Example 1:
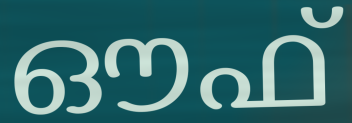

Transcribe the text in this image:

ഔഫ്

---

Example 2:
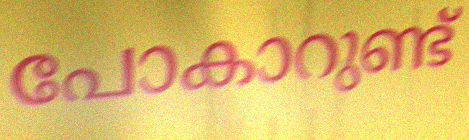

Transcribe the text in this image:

പോകാറുണ്ട്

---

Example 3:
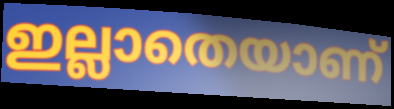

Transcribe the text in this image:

ഇല്ലാതെയാണ്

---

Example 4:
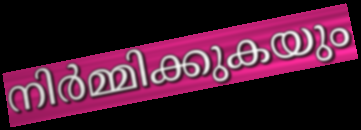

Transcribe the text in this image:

നിർമ്മിക്കുകയും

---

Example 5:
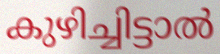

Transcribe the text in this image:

കുഴിച്ചിട്ടാൽ